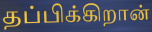
தப்பிக்கிறான்